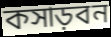
কসাড়বন